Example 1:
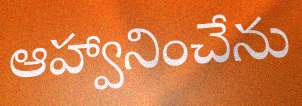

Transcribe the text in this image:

ఆహ్వానించేను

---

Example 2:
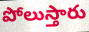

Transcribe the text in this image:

పోలుస్తారు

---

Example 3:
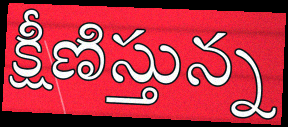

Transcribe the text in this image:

క్షీణిస్తున్న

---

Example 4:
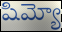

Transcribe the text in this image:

షిమ్యో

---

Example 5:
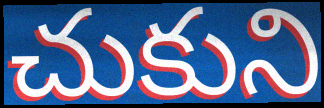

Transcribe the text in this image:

చుకుని